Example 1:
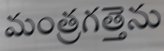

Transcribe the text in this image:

మంత్రగత్తెను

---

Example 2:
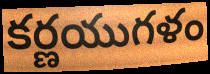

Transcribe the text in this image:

కర్ణయుగళం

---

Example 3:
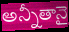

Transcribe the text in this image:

అన్నీతానై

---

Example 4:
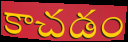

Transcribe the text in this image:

కాచడం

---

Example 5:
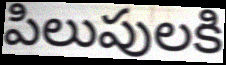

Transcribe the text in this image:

పిలుపులకి